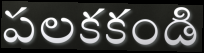
పలకకండి